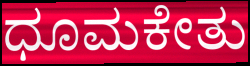
ಧೂಮಕೇತು